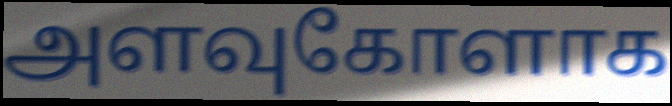
அளவுகோளாக